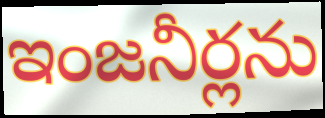
ఇంజనీర్లను